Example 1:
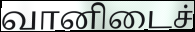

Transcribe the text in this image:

வானிடைச்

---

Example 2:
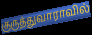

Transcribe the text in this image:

குருத்துவாராவில்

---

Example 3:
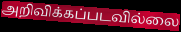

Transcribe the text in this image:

அறிவிக்கப்படவில்லை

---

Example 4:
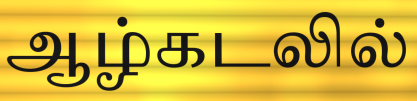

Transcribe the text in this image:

ஆழ்கடலில்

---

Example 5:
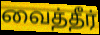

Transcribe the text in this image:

வைத்தீர்